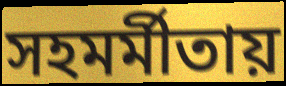
সহমর্মীতায়